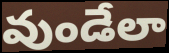
వుండేలా